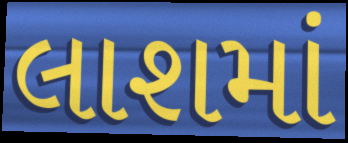
લાશમાં